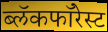
ब्लॅकफॉरेस्ट